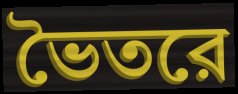
ভৈতরে